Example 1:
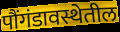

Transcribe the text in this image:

पौंगंडावस्थेतील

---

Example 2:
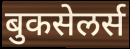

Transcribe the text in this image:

बुकसेलर्स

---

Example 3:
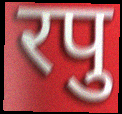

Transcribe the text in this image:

रपु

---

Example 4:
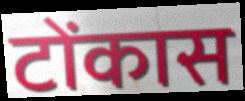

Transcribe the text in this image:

टोंकास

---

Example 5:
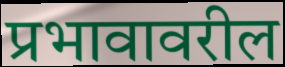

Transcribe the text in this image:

प्रभावावरील